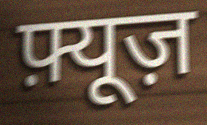
फ़्यूज़